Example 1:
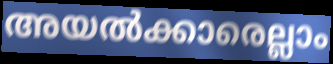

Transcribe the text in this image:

അയൽക്കാരെല്ലാം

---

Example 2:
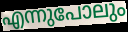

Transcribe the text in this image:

എന്നുപോലും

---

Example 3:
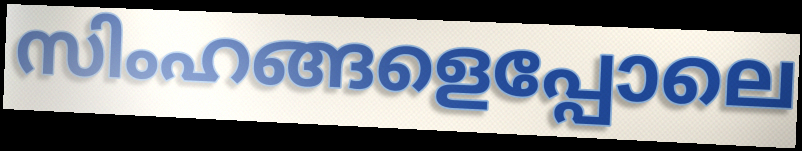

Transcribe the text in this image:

സിംഹങ്ങളെപ്പോലെ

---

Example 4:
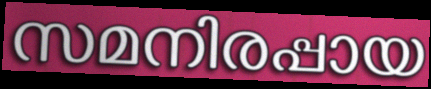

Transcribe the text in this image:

സമനിരപ്പായ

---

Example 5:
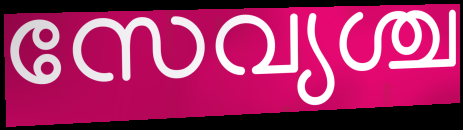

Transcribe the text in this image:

സേവ്യശ്ച